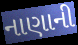
નાણાની